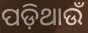
ପଡ଼ିଥାଉଁ